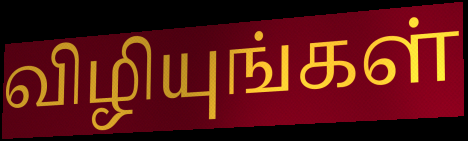
விழியுங்கள்